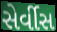
સેર્વીસ